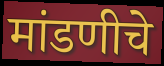
मांडणीचे